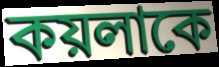
কয়লাকে